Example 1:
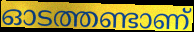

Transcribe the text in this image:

ഓടത്തണ്ടാണ്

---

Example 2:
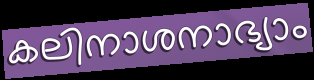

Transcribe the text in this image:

കലിനാശനാഭ്യാം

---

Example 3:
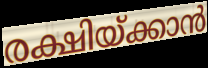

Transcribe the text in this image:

രക്ഷിയ്ക്കാൻ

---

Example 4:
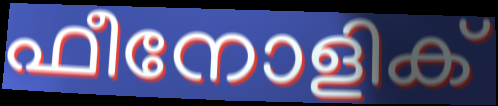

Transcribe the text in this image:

ഫീനോളിക്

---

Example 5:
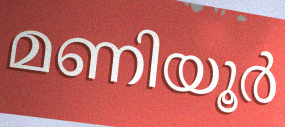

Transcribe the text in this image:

മണിയൂർ